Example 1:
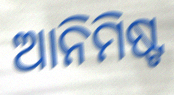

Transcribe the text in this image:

ଆନିମିଷ୍ଟ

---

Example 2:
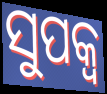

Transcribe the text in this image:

ସୁପକ୍ବ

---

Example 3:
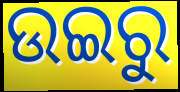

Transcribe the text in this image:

ଉଇରୁ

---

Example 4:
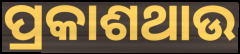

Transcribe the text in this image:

ପ୍ରକାଶଥାଉ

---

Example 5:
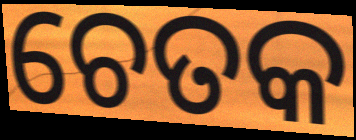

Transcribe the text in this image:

ଚେତକ